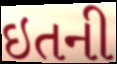
ઇતની